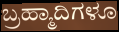
ಬ್ರಹ್ಮಾದಿಗಳೂ